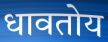
धावतोय